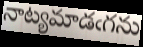
నాట్యమాడఁగను